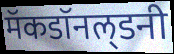
मॅकडॉनल्डनी